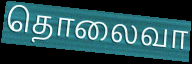
தொலைவா